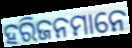
ହରିଜନମାନେ